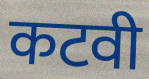
कटवी